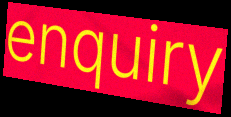
enquiry